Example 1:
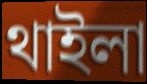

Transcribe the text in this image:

থাইলা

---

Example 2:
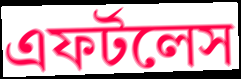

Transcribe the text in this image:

এফর্টলেস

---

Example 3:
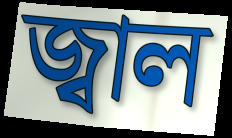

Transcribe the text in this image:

জ্বাল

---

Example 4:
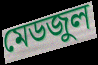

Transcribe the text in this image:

মেডজুল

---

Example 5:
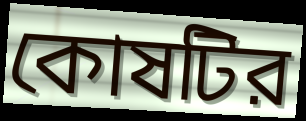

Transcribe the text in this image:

কোষটির